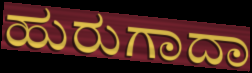
ಹುರುಗಾದಾ